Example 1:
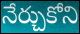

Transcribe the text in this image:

నేర్చుకోని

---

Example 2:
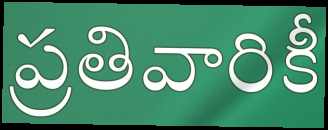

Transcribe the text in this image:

ప్రతివారికీ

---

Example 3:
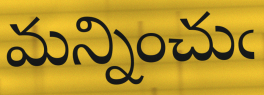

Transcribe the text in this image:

మన్నించుఁ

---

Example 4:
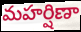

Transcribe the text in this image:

మహర్షిణా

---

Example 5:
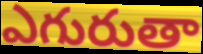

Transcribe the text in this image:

ఎగురుతా